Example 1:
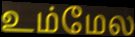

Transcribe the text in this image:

உம்மேல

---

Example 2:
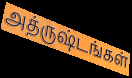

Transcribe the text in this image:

அத்ருஷ்டங்கள்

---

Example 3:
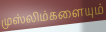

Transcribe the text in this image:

முஸ்லிம்களையும்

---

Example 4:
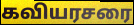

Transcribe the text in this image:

கவியரசரை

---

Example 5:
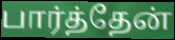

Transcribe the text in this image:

பார்த்தேன்